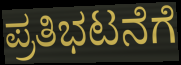
ಪ್ರತಿಭಟನೆಗೆ